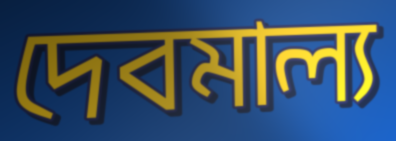
দেবমাল্য